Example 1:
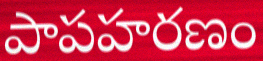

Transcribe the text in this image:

పాపహరణం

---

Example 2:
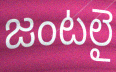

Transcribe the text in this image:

జంటలై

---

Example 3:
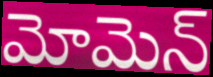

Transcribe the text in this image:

మోమెన్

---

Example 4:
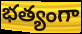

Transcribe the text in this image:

భత్యంగా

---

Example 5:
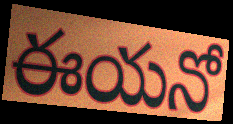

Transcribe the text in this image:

ఈయనో